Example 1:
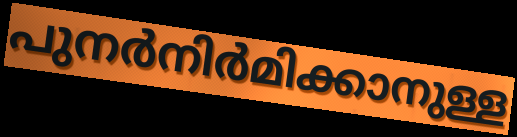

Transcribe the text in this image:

പുനർനിർമിക്കാനുള്ള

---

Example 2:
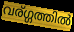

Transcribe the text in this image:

വര്ഗ്ഗത്തിൽ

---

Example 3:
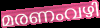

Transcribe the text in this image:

മരണംവഴി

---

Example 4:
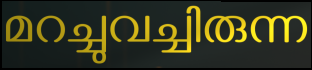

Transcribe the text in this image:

മറച്ചുവച്ചിരുന്ന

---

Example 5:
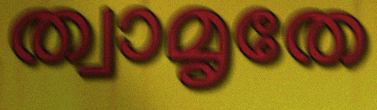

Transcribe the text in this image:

ത്വാമൃതേ